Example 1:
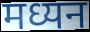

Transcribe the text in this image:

मध्यन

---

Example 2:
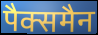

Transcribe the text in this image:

पैक्समैन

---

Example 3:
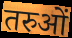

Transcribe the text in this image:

तरुओं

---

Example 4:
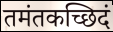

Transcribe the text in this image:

तमंतकच्छिदं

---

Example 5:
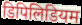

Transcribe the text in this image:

डिपिलिडियम